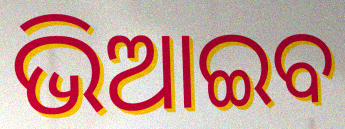
ଭିଆଇବ